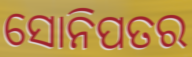
ସୋନିପତର